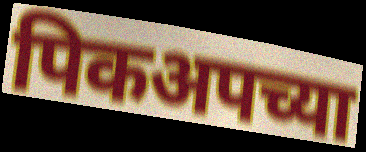
पिकअपच्या